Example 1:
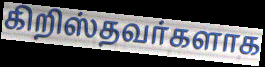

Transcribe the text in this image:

கிறிஸ்தவர்களாக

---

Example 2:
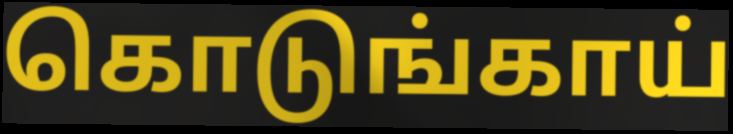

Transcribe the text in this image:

கொடுங்காய்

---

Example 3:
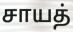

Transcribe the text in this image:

சாயத்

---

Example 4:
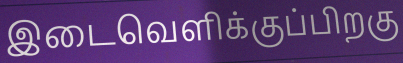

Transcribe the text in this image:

இடைவெளிக்குப்பிறகு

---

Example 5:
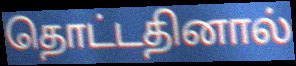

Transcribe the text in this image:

தொட்டதினால்